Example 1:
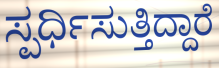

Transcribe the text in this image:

ಸ್ಪರ್ಧಿಸುತ್ತಿದ್ದಾರೆ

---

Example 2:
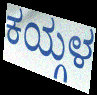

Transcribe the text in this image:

ಕಯ್ಗಳ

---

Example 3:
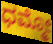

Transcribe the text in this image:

ಧಮ್ಮೋ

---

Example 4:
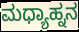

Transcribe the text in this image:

ಮಧ್ಯಾಹ್ನನ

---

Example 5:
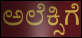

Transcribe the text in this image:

ಅಲೆಕ್ಸಿಗೆ